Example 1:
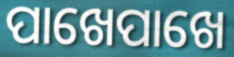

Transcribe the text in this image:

ପାଖେପାଖେ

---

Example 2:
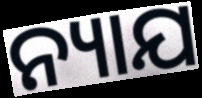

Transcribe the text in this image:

ନ୍ୟାଯ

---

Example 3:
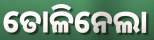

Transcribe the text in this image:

ତୋଳିନେଲା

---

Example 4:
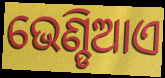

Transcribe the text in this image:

ଭେଣ୍ଡିଆଏ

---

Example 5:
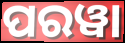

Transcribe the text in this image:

ପରୱା